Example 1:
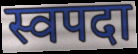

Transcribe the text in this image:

स्वपदा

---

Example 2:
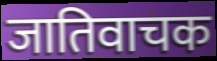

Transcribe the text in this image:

जातिवाचक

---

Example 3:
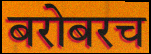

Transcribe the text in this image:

बरोबरच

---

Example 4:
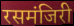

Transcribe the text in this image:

रसमंजिरी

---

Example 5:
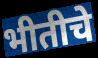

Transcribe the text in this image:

भीतीचे